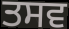
ਤਸਵ